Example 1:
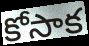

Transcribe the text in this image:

కోసాక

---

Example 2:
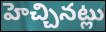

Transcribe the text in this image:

హెచ్చినట్లు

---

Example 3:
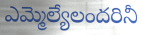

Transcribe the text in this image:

ఎమ్మెల్యేలందరినీ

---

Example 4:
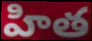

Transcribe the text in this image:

హిత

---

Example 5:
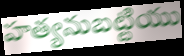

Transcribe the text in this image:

హత్యనుబట్టియు